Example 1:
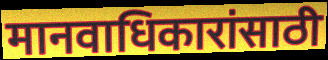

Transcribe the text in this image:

मानवाधिकारांसाठी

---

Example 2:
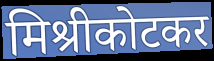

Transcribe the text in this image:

मिश्रीकोटकर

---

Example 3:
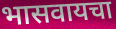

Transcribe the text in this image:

भासवायचा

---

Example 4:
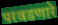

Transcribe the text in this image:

परवडणारे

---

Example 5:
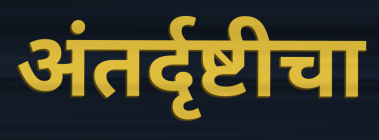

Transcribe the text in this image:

अंतर्दृष्टीचा